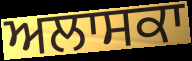
ਅਲਾਸਕਾ